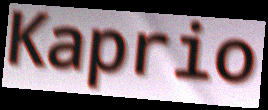
Kaprio